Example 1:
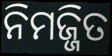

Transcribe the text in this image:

ନିମଜ୍ଜିତ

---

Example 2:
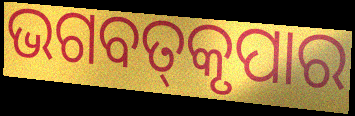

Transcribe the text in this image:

ଭଗବତ୍‌କୃପାର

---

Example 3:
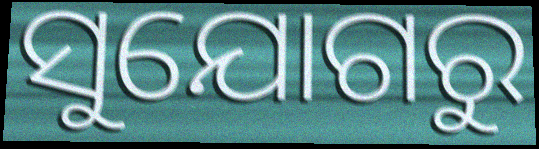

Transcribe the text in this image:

ସୁଯୋଗରୁ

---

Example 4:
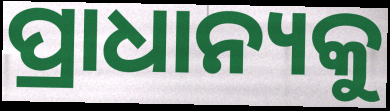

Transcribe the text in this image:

ପ୍ରାଧାନ୍ୟକୁ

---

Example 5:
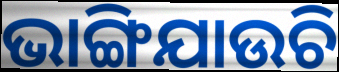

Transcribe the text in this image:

ଭାଙ୍ଗିଯାଉଚି